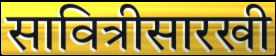
सावित्रीसारखी